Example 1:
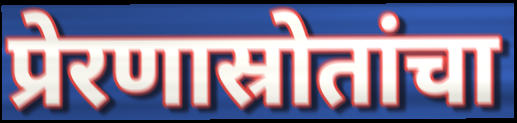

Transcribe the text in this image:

प्रेरणास्रोतांचा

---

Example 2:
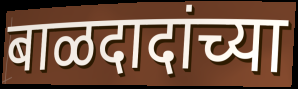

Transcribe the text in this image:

बाळदादांच्या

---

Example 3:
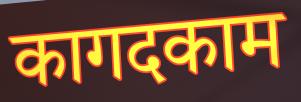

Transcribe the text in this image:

कागदकाम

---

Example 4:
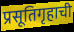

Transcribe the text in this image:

प्रसूतिगृहाची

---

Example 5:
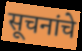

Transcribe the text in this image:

सूचनांचे